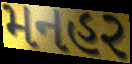
મનહર